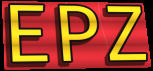
EPZ